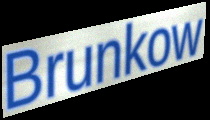
Brunkow